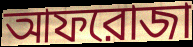
আফরোজা